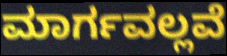
ಮಾರ್ಗವಲ್ಲವೆ